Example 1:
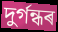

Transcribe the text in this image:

দুৰ্গন্ধৰ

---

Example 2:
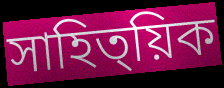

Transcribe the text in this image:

সাহিত্য়িক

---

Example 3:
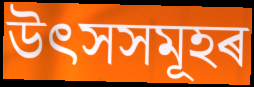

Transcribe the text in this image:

উৎসসমূহৰ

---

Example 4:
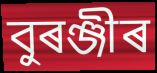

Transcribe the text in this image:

বুৰঞ্জীৰ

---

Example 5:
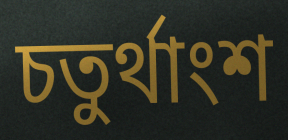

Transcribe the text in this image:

চতুৰ্থাংশ